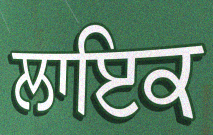
ਲਾਇਕ